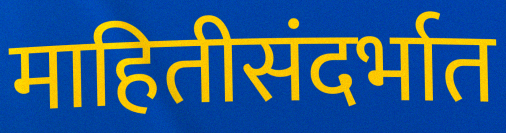
माहितीसंदर्भात